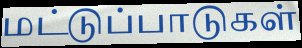
மட்டுப்பாடுகள்